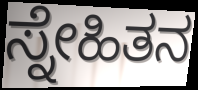
ಸ್ನೇಹಿತನ